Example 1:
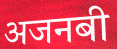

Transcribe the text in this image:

अजनबी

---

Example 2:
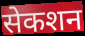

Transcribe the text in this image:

सेकशन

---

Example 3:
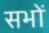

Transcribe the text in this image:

सभों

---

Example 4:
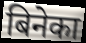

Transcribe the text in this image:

बिनेका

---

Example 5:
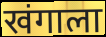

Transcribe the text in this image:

खंगाला